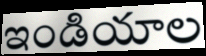
ఇండియాల